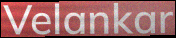
Velankar